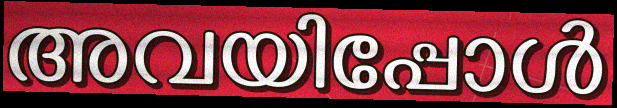
അവയിപ്പോൾ